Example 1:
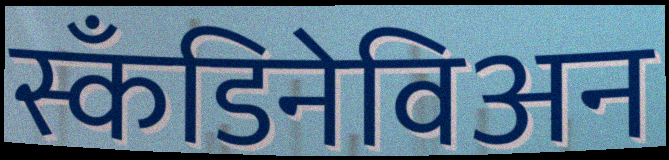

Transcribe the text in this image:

स्कॅंडिनेविअन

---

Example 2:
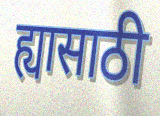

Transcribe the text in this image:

ह्यासाठी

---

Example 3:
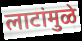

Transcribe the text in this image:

लाटांमुळे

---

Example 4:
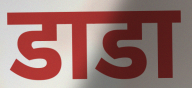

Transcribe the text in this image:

डाडा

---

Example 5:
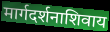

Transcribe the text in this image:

मार्गदर्शनाशिवाय